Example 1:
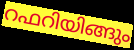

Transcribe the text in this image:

റഫറിയിങ്ങും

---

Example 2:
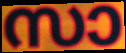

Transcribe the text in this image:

സാ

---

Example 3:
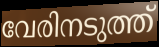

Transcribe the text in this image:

വേരിനടുത്ത്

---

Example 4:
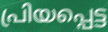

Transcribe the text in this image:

പ്രിയപ്പെട്ട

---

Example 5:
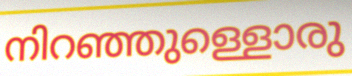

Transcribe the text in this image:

നിറഞ്ഞുള്ളൊരു